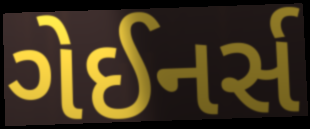
ગેઈનર્સ